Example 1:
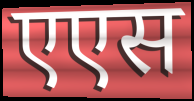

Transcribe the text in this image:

एएस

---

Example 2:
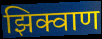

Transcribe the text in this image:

झिक्वाण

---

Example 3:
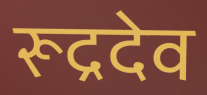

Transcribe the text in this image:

रूद्रदेव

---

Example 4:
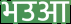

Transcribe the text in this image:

भउआ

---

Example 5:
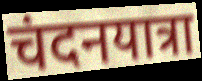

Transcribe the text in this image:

चंदनयात्रा